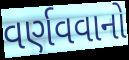
વર્ણવવાનો